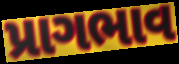
પ્રાગભાવ